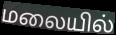
மலையில்